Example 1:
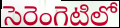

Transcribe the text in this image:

సెరెంగెటిలో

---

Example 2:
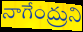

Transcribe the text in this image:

నాగేంద్రుని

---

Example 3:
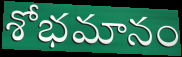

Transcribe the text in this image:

శోభమానం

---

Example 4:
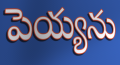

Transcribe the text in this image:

పెయ్యను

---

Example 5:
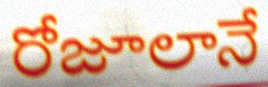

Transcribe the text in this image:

రోజూలానే